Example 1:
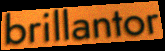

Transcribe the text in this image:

brillantor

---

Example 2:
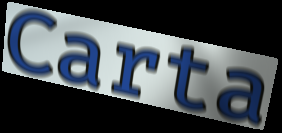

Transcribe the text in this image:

Carta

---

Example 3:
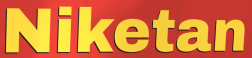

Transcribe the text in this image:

Niketan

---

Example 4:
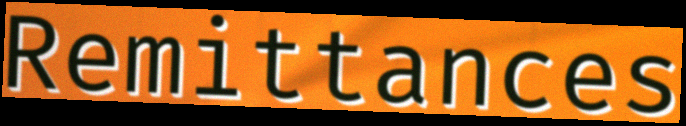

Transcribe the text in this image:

Remittances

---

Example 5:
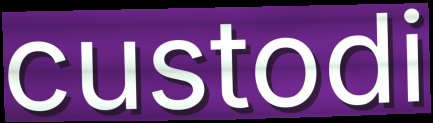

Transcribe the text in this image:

custodi